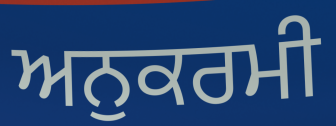
ਅਨੁਕਰਮੀ